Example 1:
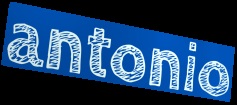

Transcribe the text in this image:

antonio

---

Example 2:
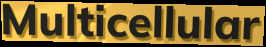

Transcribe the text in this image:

Multicellular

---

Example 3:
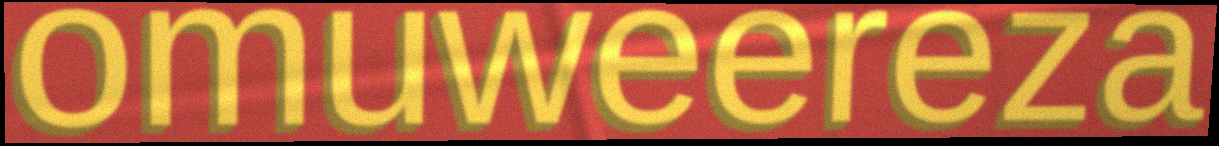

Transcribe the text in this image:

omuweereza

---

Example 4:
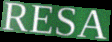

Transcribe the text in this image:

RESA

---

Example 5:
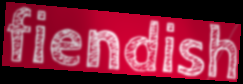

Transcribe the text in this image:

fiendish